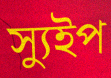
স্যুইপ